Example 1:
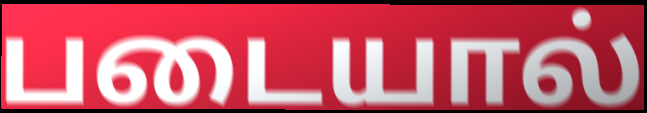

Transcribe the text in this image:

படையால்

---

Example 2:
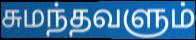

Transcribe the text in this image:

சுமந்தவளும்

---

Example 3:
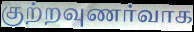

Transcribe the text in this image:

குற்றவுணர்வாக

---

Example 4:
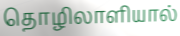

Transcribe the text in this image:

தொழிலாளியால்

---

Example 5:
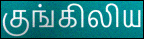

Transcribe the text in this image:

குங்கிலிய